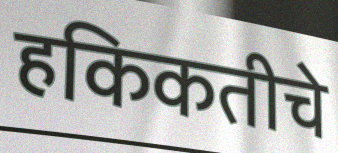
हकिकतीचे